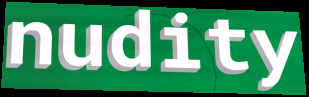
nudity